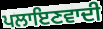
ਪਲਾਇਣਵਾਦੀ